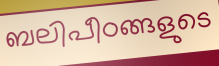
ബലിപീഠങ്ങളുടെ